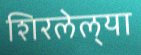
शिरलेल्या